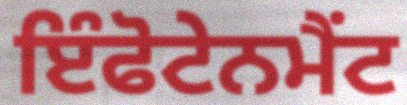
ਇੰਫੋਟੇਨਮੈਂਟ